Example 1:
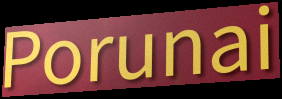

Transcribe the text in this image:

Porunai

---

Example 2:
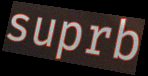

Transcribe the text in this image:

suprb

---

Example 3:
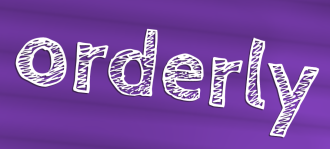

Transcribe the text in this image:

orderly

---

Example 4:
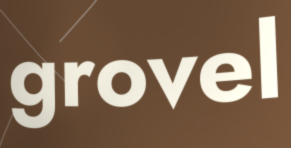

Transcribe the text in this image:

grovel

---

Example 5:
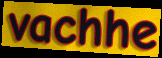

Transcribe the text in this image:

vachhe